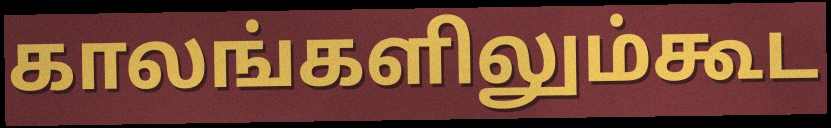
காலங்களிலும்கூட